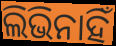
ଲିଭିନାହିଁ